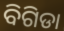
ବିଗିଡା